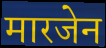
मारजेन